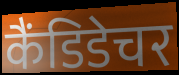
कैंडिडेचर